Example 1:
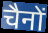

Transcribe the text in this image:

चैनों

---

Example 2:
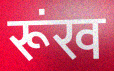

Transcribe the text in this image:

रूंख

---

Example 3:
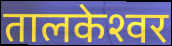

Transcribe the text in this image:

तालकेश्वर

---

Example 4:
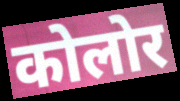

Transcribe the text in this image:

कोलोर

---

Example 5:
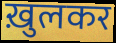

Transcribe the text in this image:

ख़ुलकर